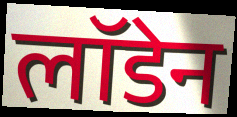
लॉडेन